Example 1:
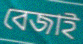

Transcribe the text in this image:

বেজাই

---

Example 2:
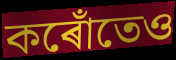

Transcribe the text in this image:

কৰোঁতেও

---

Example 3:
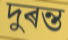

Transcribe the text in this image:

দুৰন্ত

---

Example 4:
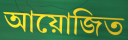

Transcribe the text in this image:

আয়োজিত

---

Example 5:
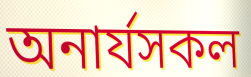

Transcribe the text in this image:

অনাৰ্যসকল